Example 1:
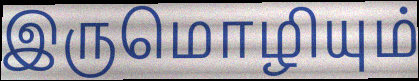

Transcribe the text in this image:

இருமொழியும்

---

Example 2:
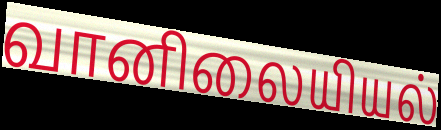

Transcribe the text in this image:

வானிலையியல்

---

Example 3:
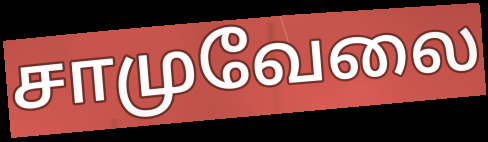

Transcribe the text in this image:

சாமுவேலை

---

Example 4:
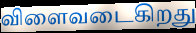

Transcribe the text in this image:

விளைவடைகிறது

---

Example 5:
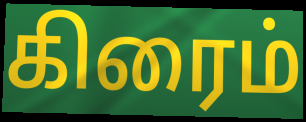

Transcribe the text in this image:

கிரைம்